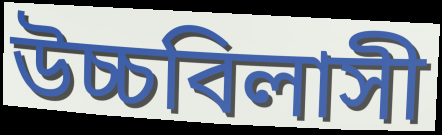
উচ্চবিলাসী